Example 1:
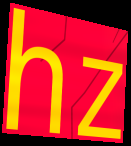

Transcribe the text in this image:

hz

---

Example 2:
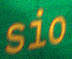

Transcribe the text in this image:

sio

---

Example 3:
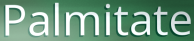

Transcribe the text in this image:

Palmitate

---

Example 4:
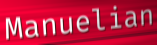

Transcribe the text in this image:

Manuelian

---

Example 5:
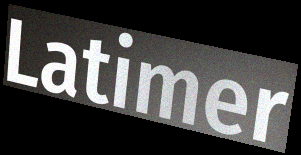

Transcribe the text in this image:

Latimer